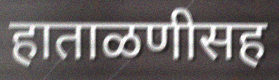
हाताळणीसह